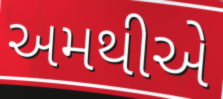
અમથીએ